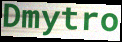
Dmytro